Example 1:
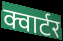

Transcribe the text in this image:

क्वार्टर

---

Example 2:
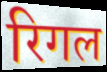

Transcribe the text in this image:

रिगल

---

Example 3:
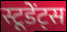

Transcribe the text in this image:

स्टूडेंट्स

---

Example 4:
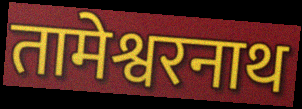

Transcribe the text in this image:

तामेश्वरनाथ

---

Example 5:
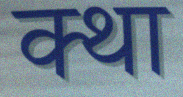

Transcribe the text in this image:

क्था